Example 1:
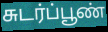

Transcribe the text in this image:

சுடர்ப்பூண்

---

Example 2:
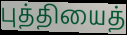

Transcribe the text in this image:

புத்தியைத்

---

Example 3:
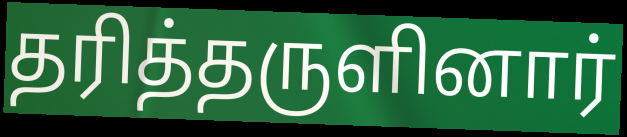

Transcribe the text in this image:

தரித்தருளினார்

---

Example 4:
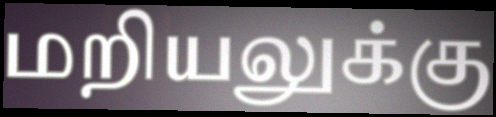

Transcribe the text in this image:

மறியலுக்கு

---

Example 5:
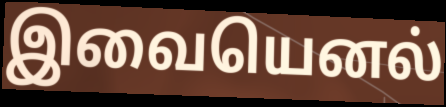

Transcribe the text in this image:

இவையெனல்